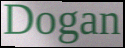
Dogan